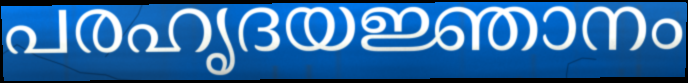
പരഹൃദയജ്ഞാനം